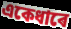
একেধাৰে